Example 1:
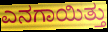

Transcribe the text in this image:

ಎನಗಾಯಿತ್ತು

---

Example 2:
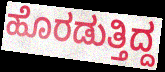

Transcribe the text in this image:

ಹೊರಡುತ್ತಿದ್ದ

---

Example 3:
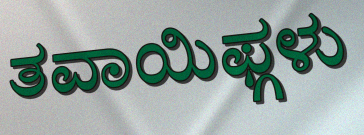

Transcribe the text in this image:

ತವಾಯಿಫ್ಗಳು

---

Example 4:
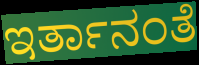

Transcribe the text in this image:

ಇರ್ತಾನಂತೆ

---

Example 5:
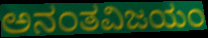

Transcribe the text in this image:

ಅನಂತವಿಜಯಂ